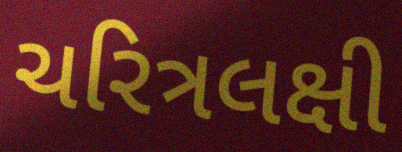
ચરિત્રલક્ષી